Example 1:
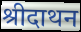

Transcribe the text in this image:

श्रीदाथन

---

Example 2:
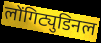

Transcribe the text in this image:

लोंगिट्युडिनल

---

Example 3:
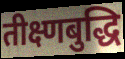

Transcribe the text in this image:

तीक्ष्णबुद्धि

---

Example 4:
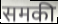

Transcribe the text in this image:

समकी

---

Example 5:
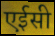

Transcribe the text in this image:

एईसी